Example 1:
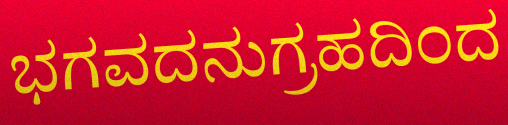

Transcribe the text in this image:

ಭಗವದನುಗ್ರಹದಿಂದ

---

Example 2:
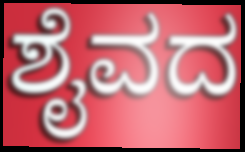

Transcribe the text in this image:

ಶೈವದ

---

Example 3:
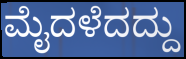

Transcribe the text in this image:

ಮೈದಳೆದದ್ದು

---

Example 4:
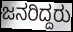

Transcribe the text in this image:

ಜನರಿದ್ದರು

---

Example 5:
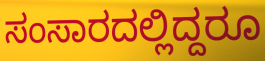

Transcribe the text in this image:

ಸಂಸಾರದಲ್ಲಿದ್ದರೂ